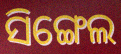
ସିଙ୍ଗେଲ